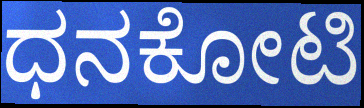
ಧನಕೋಟಿ